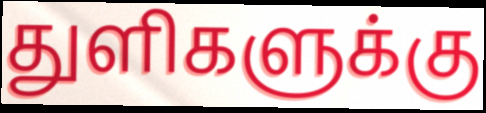
துளிகளுக்கு